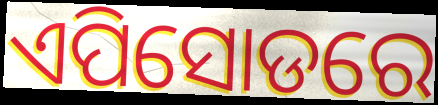
ଏପିସୋଡରେ